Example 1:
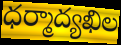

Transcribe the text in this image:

ధర్మాద్యఖిల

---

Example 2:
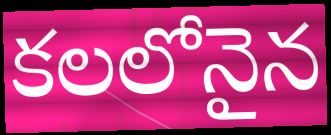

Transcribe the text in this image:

కలలోనైన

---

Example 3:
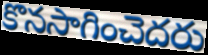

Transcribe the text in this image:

కొనసాగించెదరు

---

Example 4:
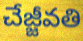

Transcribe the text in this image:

చేజ్జీవతి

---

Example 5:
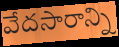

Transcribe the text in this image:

వేదసారాన్ని